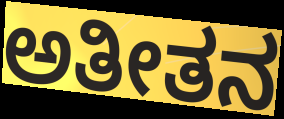
ಅತೀತನ